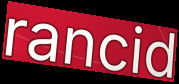
rancid